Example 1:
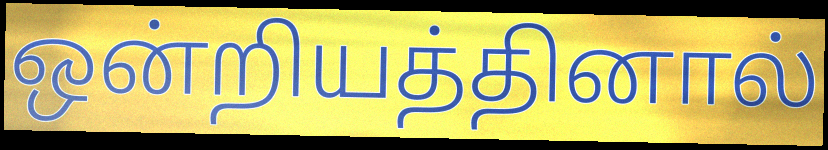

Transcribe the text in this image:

ஒன்றியத்தினால்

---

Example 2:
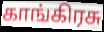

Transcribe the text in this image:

காங்கிரசு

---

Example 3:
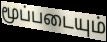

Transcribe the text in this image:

மூப்படையும்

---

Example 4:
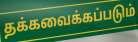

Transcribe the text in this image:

தக்கவைக்கப்படும்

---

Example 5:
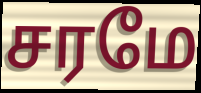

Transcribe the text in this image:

சரமே